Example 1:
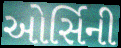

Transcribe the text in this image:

ઓર્સિની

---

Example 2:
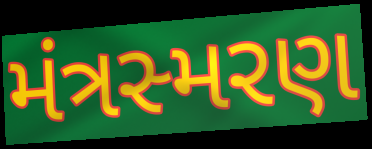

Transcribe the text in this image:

મંત્રસ્મરણ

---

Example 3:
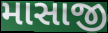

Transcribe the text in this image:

માસાજી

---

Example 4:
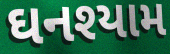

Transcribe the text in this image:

ઘનશ્યામ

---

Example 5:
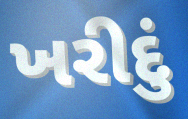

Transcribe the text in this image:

ખરીદું